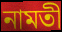
নামতী